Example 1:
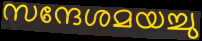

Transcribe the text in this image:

സന്ദേശമയച്ചു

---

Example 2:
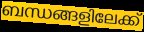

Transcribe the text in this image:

ബന്ധങ്ങളിലേക്ക്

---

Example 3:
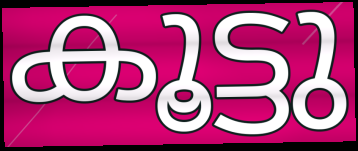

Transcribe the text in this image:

കൂട്ടു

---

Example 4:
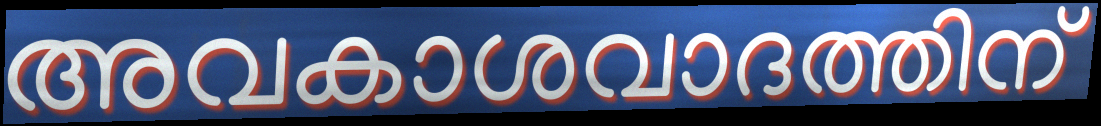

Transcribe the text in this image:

അവകാശവാദത്തിന്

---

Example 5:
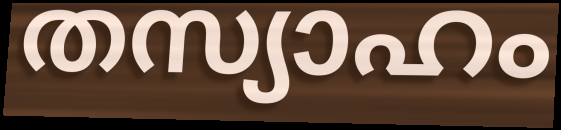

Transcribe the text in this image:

തസ്യാഹം